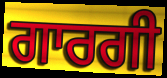
ਗਾਰਗੀ